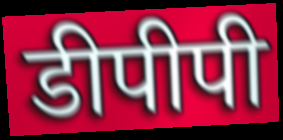
डीपीपी